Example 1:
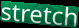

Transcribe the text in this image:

stretch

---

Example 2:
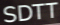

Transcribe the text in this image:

SDTT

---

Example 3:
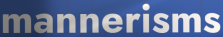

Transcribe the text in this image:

mannerisms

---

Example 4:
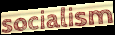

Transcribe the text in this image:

socialism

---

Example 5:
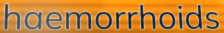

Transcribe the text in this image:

haemorrhoids